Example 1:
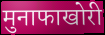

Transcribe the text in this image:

मुनाफाखोरी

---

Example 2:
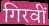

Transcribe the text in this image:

गिरवीं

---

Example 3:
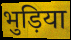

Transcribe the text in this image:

भुड़िया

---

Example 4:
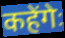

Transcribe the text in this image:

कहेंगेः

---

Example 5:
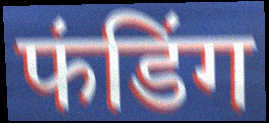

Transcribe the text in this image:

फंडिंग